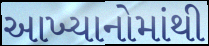
આખ્યાનોમાંથી